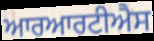
ਆਰਆਰਟੀਐਸ